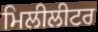
ਮਿਲੀਲੀਟਰ